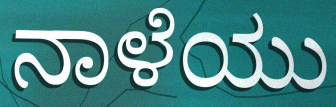
ನಾಳೆಯು